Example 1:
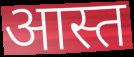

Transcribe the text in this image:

आस्त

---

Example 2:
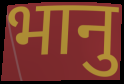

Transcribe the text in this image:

भानु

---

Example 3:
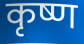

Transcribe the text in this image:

कृष्ण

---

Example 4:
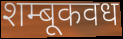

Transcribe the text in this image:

शम्बूकवध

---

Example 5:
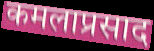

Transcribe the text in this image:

कमलाप्रसाद